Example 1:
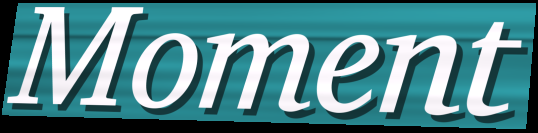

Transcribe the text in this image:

Moment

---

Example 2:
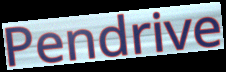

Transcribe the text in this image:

Pendrive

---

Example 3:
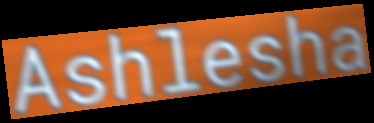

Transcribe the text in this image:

Ashlesha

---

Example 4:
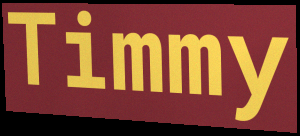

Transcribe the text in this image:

Timmy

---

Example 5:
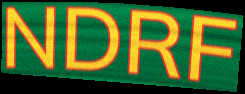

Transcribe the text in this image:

NDRF